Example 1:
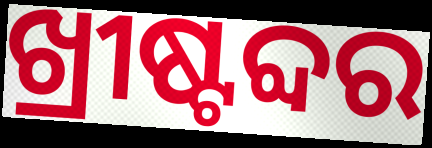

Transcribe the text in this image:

ଖ୍ରୀଷ୍ଟବ୍ଦର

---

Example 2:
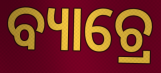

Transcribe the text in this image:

ବ୍ୟାଚ୍ରେ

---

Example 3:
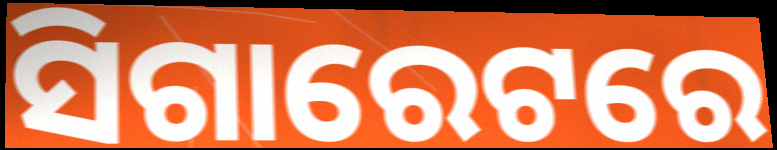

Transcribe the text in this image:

ସିଗାରେଟରେ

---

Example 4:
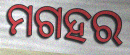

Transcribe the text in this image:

ମଗହର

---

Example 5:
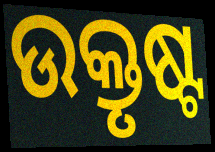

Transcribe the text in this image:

ଉକ୍ତୃଷ୍ଟ